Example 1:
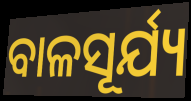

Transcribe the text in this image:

ବାଳସୂର୍ଯ୍ୟ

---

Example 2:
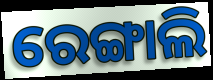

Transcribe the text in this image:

ରେଙ୍ଗାଲି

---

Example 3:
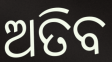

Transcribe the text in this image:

ଅତିବ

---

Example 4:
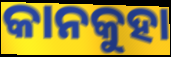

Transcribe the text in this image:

କାନକୁହା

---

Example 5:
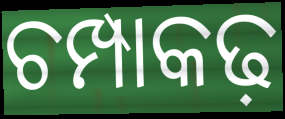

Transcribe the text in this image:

ଚମ୍ପାକଢ଼